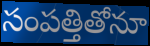
సంపత్తితోనూ